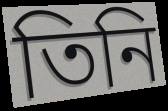
তিনি